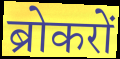
ब्रोकरों